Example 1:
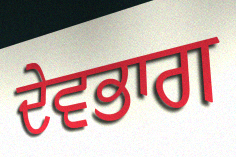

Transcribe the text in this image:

ਦੇਵਭਾਗ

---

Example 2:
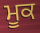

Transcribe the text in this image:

ਮੂਕ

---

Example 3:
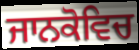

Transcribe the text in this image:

ਜਾਨਕੋਵਿਚ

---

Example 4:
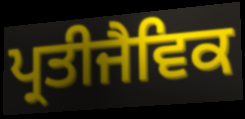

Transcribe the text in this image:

ਪ੍ਰਤੀਜੈਵਿਕ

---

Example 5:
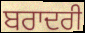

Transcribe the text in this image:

ਬਰਾਦਰੀ